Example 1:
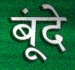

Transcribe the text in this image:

बूंदे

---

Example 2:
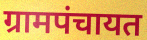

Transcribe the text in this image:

ग्रामपंचायत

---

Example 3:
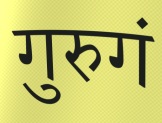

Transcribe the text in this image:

गुरुगं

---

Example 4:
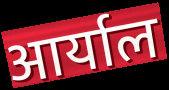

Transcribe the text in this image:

आर्याल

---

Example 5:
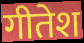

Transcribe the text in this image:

गीतेश